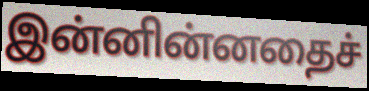
இன்னின்னதைச்